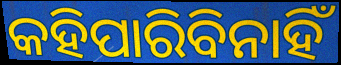
କହିପାରିବିନାହିଁ